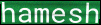
hamesh